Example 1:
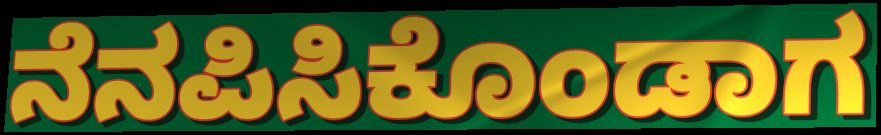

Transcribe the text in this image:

ನೆನಪಿಸಿಕೊಂಡಾಗ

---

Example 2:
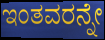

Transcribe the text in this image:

ಇಂತವರನ್ನೇ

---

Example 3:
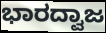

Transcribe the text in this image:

ಭಾರದ್ವಾಜ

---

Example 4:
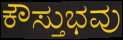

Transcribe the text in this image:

ಕೌಸ್ತುಭವು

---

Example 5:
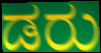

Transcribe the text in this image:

ಡರು